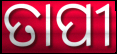
ତାପୀ